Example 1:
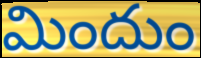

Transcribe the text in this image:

మిందుం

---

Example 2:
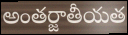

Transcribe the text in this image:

అంతర్జాతీయత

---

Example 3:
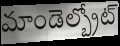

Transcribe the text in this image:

మాండెల్బ్రోట్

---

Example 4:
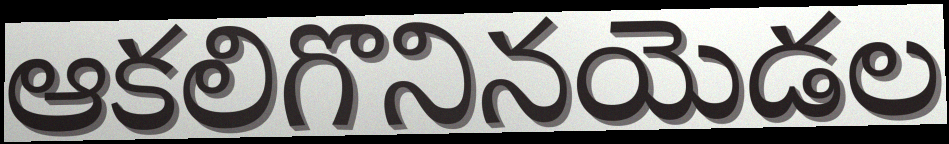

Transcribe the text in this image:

ఆకలిగొనినయెడల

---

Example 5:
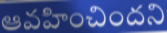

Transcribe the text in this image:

ఆవహించిందని